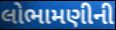
લોભામણીની